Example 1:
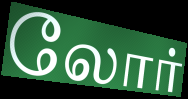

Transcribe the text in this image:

லோர்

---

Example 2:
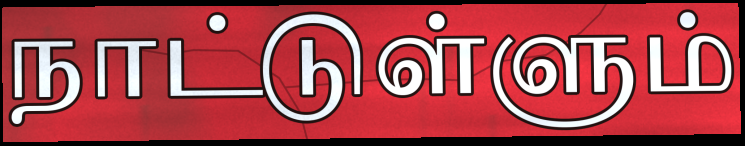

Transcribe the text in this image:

நாட்டுள்ளும்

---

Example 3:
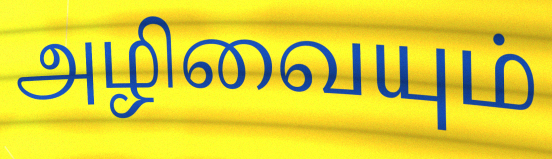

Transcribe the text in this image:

அழிவையும்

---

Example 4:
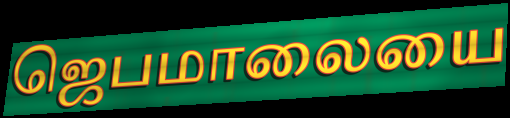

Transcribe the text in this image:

ஜெபமாலையை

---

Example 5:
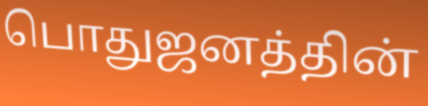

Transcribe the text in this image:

பொதுஜனத்தின்